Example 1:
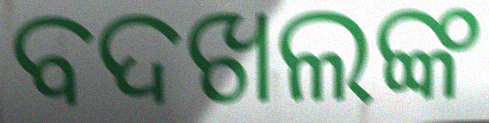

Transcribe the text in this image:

ବଦଖଲଙ୍କ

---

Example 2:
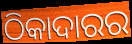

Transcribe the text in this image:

ଠିକାଦାରର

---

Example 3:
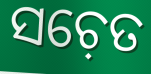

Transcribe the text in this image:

ସଚ଼େତ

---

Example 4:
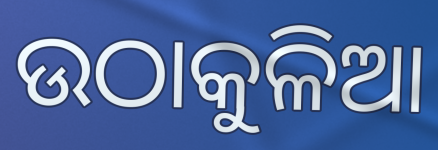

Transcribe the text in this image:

ଉଠାକୁଳିଆ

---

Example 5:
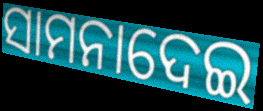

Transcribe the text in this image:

ସାମନାଦେଇ